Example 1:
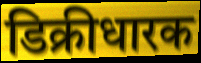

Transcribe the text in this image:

डिक्रीधारक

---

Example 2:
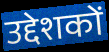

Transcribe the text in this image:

उद्देशकों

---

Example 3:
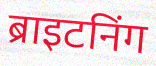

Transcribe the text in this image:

ब्राइटनिंग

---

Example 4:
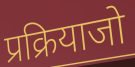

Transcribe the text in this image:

प्रक्रियाजो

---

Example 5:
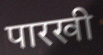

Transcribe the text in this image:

पारखी